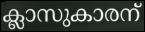
ക്ലാസുകാരന്